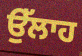
ਉੱਲਾਹ